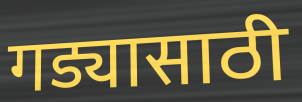
गड्यासाठी